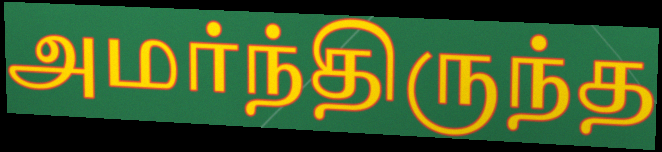
அமர்ந்திருந்த